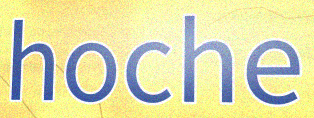
hoche